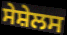
ਸੇਸ਼ੇਲਸ